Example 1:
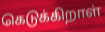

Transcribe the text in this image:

கெடுக்கிறாள்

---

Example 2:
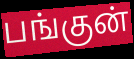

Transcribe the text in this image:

பங்குன்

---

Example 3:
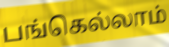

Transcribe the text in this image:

பங்கெல்லாம்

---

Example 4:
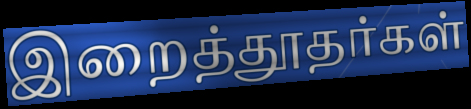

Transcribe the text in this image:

இறைத்தூதர்கள்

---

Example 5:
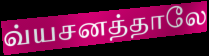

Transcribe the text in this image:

வ்யசனத்தாலே